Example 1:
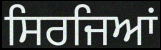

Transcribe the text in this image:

ਸਿਰਜਿਆਂ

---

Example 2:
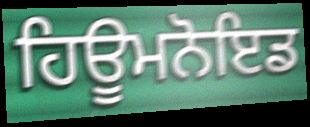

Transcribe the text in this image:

ਹਿਊਮਨੋਇਡ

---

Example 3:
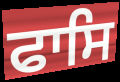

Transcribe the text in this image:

ਫਾਸਿ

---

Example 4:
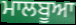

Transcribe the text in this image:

ਮਾਲਬੂਆ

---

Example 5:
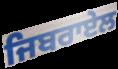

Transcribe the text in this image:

ਜਿਬਰਾਏਲ